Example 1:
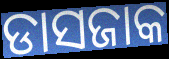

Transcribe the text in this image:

ଡାସଜାକ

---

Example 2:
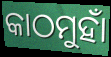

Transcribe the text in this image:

କାଠମୁହାଁ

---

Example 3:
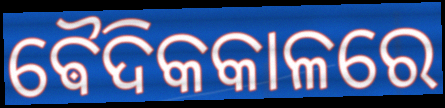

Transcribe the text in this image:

ଵୈଦିକକାଳରେ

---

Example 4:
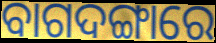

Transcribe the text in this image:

ବାଗଦଙ୍ଗାରେ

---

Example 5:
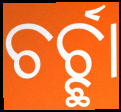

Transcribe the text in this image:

ଚର୍ଚ୍ଛା